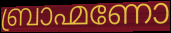
ബ്രാഹ്മണോ